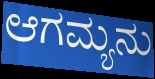
ಆಗಮ್ಯನು